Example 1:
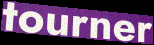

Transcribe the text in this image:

tourner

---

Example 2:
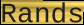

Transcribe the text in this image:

Rands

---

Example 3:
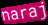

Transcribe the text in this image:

naraj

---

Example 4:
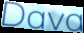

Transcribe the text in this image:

Dava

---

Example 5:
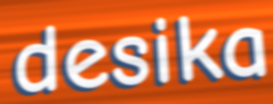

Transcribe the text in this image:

desika